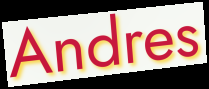
Andres